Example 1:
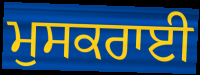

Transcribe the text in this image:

ਮੁਸਕਰਾਈ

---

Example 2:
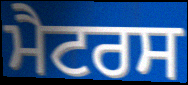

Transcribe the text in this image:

ਮੈਟਰਸ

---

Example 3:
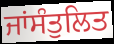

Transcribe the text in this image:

ਜਾਂਸੰਤੁਲਿਤ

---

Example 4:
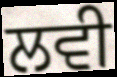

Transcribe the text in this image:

ਲਵੀ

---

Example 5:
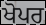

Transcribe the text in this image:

ਖੋਪਰ